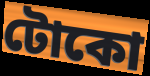
টোকো